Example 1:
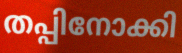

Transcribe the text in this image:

തപ്പിനോക്കി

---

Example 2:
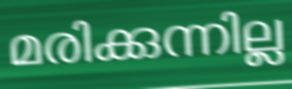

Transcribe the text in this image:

മരിക്കുന്നില്ല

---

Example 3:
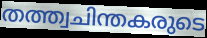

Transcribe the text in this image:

തത്ത്വചിന്തകരുടെ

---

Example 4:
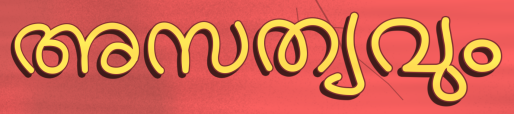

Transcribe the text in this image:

അസത്യവും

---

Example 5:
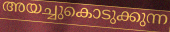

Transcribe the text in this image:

അയച്ചുകൊടുക്കുന്ന